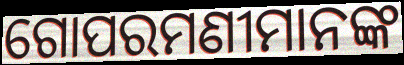
ଗୋପରମଣୀମାନଙ୍କ